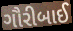
ગૌરીબાઈ